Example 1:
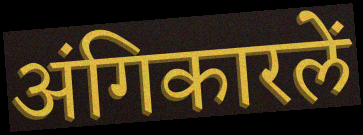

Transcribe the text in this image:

अंगिकारलें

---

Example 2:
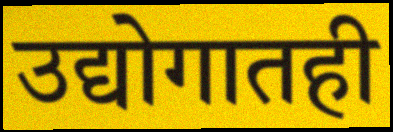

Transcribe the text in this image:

उद्योगातही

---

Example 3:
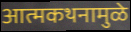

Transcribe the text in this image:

आत्मकथनामुळे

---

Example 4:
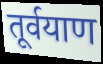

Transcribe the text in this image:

तूर्वयाण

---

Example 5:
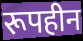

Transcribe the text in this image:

रूपहीन